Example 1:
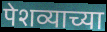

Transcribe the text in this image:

पेशव्याच्या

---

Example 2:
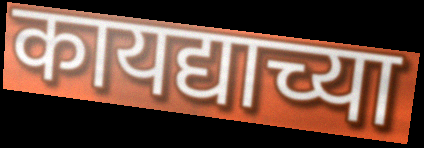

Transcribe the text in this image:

कायद्याच्या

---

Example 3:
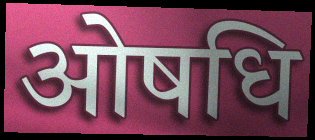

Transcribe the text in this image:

ओषधि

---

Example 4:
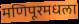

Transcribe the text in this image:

मणिपूरमधला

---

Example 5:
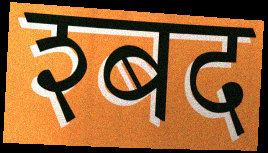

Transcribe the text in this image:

श्बद